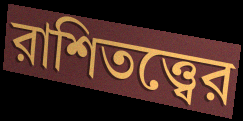
রাশিতত্ত্বের